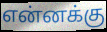
என்னக்கு